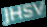
JHSV